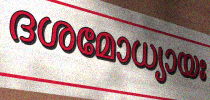
ദശമോധ്യായഃ